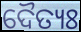
ଦୈତ୍ୟଃ